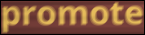
promote